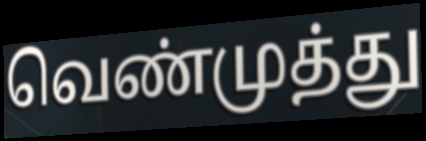
வெண்முத்து